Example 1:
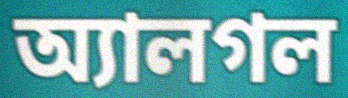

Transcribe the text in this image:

অ্যালগল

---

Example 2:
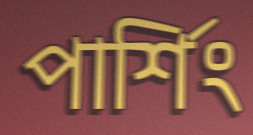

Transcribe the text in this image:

পার্শিং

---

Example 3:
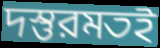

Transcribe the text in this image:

দস্তুরমতই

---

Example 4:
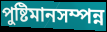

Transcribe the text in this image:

পুষ্টিমানসম্পন্ন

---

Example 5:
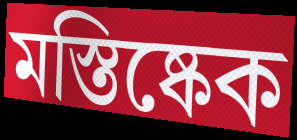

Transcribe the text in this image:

মস্তিষ্কেক